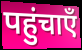
पहुंचाएँ